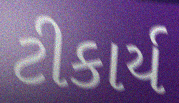
ટીકાર્ય